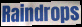
Raindrops